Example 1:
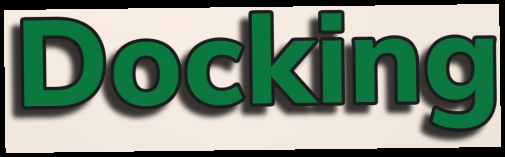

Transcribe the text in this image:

Docking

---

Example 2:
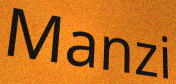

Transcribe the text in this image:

Manzi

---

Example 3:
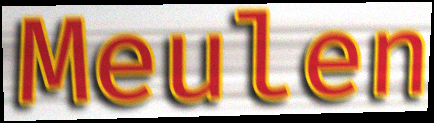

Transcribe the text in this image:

Meulen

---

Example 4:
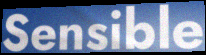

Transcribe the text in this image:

Sensible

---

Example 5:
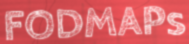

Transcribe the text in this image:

FODMAPs